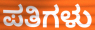
ಪತಿಗಳು